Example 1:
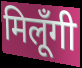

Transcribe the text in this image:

मिलूँगी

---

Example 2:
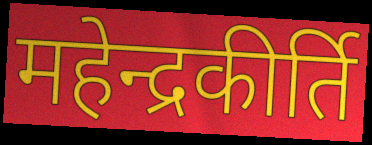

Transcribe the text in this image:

महेन्द्रकीर्ति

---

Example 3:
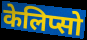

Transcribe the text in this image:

केलिप्सो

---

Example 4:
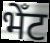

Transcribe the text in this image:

भेँट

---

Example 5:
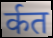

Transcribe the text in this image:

र्कत